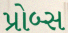
પ્રોબ્સ